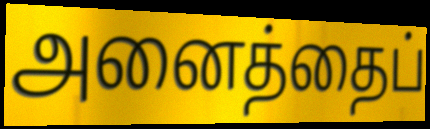
அனைத்தைப்